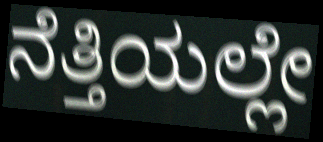
ನೆತ್ತಿಯಲ್ಲೇ